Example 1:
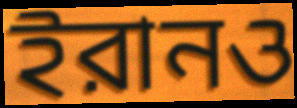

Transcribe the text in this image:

ইরানও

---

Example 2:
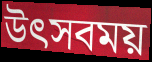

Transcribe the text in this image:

উৎসবময়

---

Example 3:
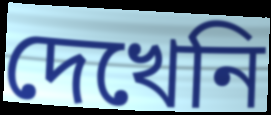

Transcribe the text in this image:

দেখেনি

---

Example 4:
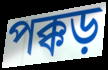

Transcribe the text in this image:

পক্কড়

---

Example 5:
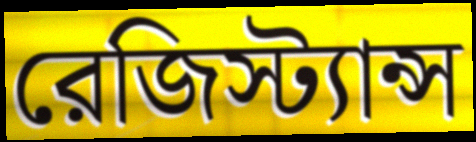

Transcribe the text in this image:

রেজিস্ট্যান্স